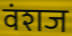
वंशज